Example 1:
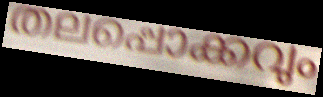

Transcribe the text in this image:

തലപ്പൊക്കവും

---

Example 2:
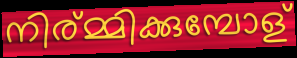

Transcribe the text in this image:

നിര്മ്മിക്കുമ്പോള്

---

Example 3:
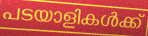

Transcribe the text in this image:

പടയാളികൾക്ക്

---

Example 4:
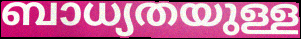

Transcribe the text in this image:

ബാധ്യതയുള്ള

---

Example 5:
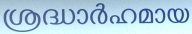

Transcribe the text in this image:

ശ്രദ്ധാർഹമായ